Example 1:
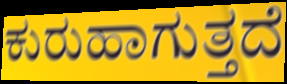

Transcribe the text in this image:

ಕುರುಹಾಗುತ್ತದೆ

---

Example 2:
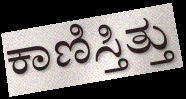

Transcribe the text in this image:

ಕಾಣಿಸ್ತಿತ್ತು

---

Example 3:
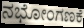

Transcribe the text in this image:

ನಭೋಂಗಣಕೆ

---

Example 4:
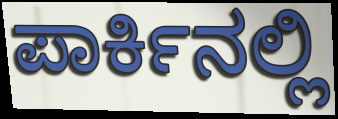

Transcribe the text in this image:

ಪಾರ್ಕಿನಲ್ಲಿ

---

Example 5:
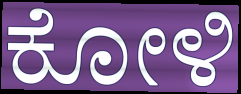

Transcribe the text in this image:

ಕೋಳಿ